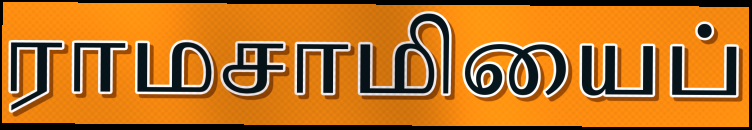
ராமசாமியைப்